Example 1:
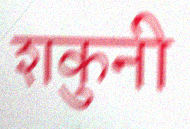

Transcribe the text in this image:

शकुनी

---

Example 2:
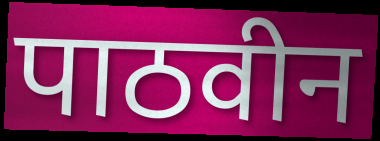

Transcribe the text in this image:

पाठवीन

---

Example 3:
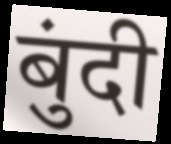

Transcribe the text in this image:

बुंदी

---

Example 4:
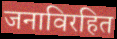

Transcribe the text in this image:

जनाविरहित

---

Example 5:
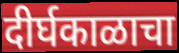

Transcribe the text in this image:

दीर्घकाळाचा